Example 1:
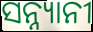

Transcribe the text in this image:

ସନ୍ନ୍ୟାନୀ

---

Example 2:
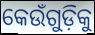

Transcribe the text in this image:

କେଉଁଗୁଡ଼ିକୁ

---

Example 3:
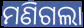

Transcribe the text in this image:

ମଣିଗଲା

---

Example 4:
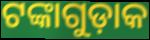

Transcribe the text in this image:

ଟଙ୍କାଗୁଡ଼ାକ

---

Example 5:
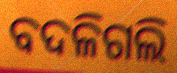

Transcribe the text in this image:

ବଦଳିଗଲି